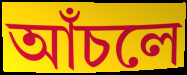
আঁচলে